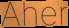
Aher